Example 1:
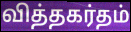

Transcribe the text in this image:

வித்தகர்தம்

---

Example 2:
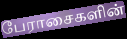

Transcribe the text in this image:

பேராசைகளின்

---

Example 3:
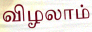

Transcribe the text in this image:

விழலாம்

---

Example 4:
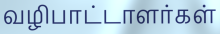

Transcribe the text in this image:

வழிபாட்டாளர்கள்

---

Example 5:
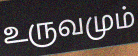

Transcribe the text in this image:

உருவமும்